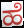
ಹೆ